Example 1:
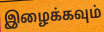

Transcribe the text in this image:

இழைக்கவும்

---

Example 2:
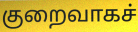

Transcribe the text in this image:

குறைவாகச்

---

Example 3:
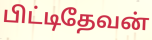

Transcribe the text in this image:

பிட்டிதேவன்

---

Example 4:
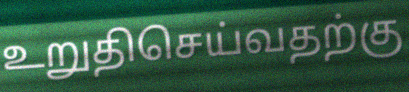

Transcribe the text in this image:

உறுதிசெய்வதற்கு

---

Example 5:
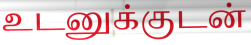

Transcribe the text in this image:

உடனுக்குடன்